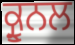
ਕ੍ਰੂਨਲ